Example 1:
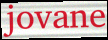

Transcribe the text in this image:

jovane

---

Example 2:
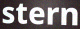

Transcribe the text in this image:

stern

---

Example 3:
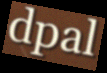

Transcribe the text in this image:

dpal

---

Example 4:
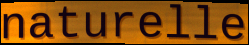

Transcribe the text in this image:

naturelle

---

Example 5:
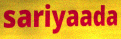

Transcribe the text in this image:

sariyaada